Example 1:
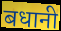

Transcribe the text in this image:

बधानी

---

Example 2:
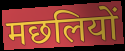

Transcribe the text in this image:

मछलियों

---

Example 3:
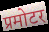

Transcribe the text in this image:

प्रमोटर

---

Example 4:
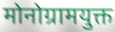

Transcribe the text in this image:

मोनोग्रामयुक्त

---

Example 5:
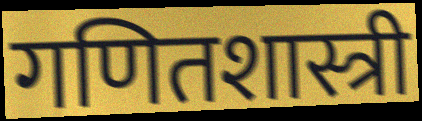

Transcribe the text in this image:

गणितशास्त्री